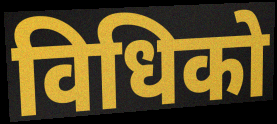
विधिको